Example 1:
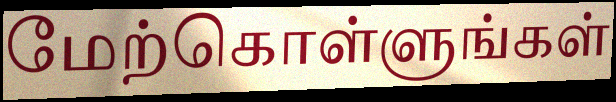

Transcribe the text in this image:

மேற்கொள்ளுங்கள்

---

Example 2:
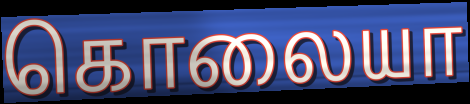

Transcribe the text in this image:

கொலையா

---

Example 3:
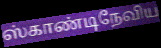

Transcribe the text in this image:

ஸ்காண்டிநேவிய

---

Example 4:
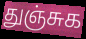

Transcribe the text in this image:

துஞ்சுக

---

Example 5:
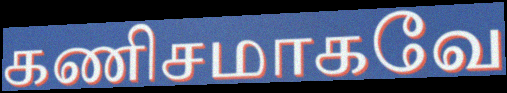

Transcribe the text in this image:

கணிசமாகவே